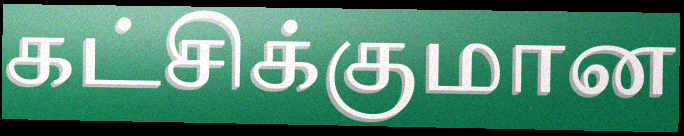
கட்சிக்குமான